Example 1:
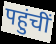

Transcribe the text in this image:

पहुंचीं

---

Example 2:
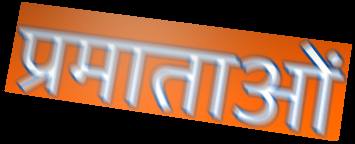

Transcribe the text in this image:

प्रमाताओं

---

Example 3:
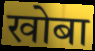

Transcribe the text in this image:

खोबा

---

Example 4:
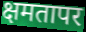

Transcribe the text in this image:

क्षमतापर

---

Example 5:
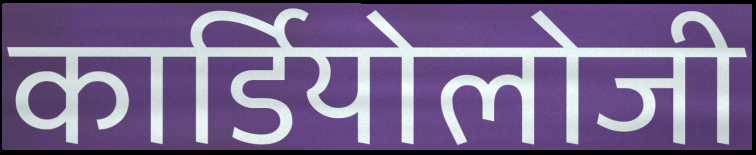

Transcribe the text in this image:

कार्डियोलोजी